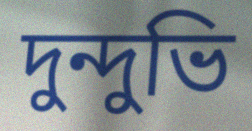
দুন্দুভি